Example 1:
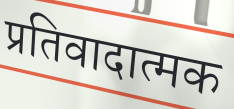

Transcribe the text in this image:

प्रतिवादात्मक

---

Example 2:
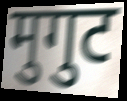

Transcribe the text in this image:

मुगुट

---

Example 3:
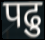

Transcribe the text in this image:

पढु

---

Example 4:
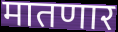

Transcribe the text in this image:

मातणार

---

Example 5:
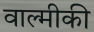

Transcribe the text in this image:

वाल्मीकी